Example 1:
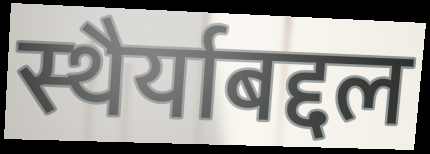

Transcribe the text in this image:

स्थैर्याबद्दल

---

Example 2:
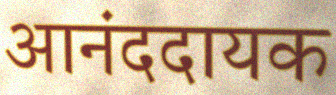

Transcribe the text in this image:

आनंददायक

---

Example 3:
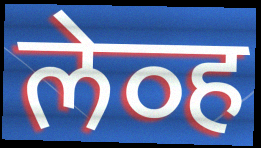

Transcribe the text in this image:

लेव्ह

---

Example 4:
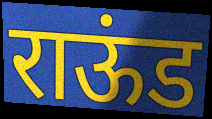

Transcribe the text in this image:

राऊंड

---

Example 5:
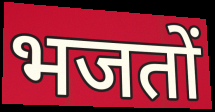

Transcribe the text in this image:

भजतों